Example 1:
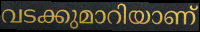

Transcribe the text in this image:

വടക്കുമാറിയാണ്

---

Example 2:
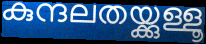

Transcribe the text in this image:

കുന്ദലതയ്ക്കുള്ളൂ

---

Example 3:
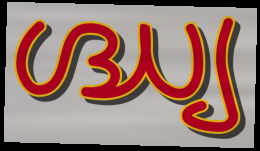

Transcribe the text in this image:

ഗ്ദ്ധ്യ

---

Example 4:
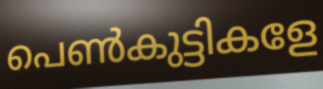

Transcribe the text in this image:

പെൺകുട്ടികളേ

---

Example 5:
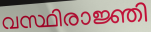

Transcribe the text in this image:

വസ്ഥിരാജ്ഞി